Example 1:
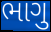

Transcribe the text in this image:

ભાગુ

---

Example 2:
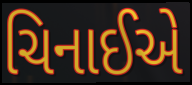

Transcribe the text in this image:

ચિનાઈએ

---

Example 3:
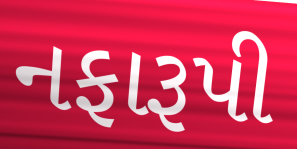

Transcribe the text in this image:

નફારૂપી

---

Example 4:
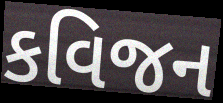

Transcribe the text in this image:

કવિજન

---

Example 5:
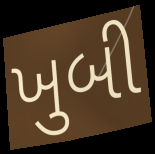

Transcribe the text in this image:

ખુબી